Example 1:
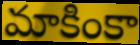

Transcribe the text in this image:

మాకింకా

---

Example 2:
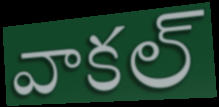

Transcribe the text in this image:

వాకల్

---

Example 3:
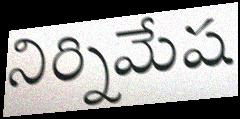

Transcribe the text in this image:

నిర్నిమేష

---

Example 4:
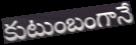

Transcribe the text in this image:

కుటుంబంగానే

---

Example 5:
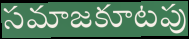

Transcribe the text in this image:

సమాజకూటపు